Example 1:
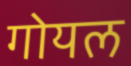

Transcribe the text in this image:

गोयल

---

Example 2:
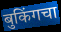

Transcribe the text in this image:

बुकिंगचा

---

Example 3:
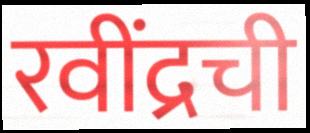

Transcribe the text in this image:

रवींद्रची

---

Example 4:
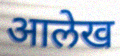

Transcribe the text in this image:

आलेख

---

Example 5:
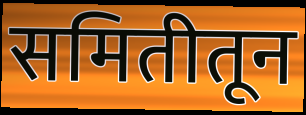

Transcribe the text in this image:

समितीतून